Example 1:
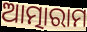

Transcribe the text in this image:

ଆତ୍ମାରାମ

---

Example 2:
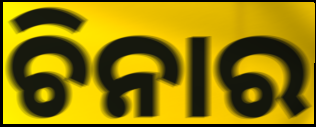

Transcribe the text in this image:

ଚିନାର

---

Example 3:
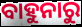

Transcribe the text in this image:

ବାହୁନାରୁ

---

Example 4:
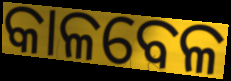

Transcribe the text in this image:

କାଳବେଳ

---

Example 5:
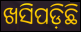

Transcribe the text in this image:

ଖସିପଡ଼ିଛି